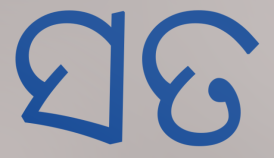
ସତ